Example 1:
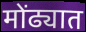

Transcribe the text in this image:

मोंढ्यात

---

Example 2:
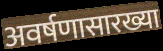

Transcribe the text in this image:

अवर्षणासारख्या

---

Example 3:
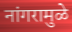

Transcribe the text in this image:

नांगरामुळे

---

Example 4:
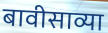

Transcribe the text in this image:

बावीसाव्या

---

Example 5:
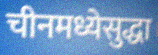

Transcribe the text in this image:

चीनमध्येसुद्धा